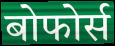
बोफोर्स